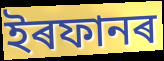
ইৰফানৰ